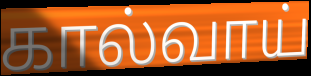
கால்வாய்